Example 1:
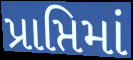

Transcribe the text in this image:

પ્રાપ્તિમાં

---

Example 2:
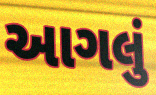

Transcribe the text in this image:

આગલું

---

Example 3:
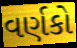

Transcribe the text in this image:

વર્ણકો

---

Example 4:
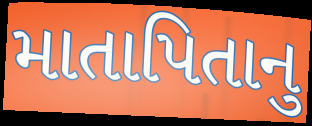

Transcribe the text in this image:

માતાપિતાનુ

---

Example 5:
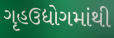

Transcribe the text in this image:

ગૃહઉદ્યોગમાંથી